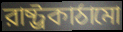
রাষ্ট্রকাঠামো